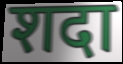
शदा